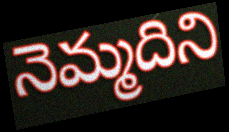
నెమ్మదిని